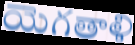
యెగతాళి